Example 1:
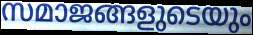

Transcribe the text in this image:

സമാജങ്ങളുടെയും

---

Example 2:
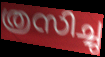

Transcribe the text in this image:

ത്രസിച്ചു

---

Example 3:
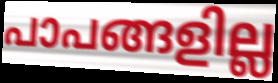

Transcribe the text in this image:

പാപങ്ങളില്ല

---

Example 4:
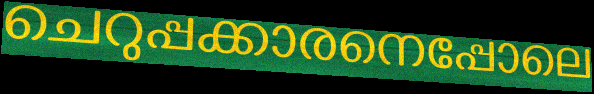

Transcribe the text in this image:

ചെറുപ്പക്കാരനെപ്പോലെ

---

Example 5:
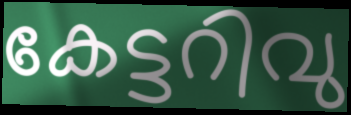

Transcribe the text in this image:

കേട്ടറിവു